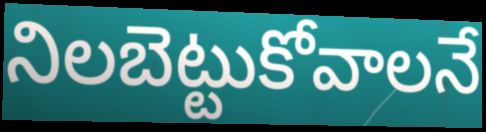
నిలబెట్టుకోవాలనే